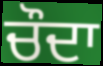
ਚੌਦਾ